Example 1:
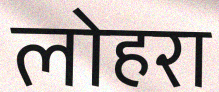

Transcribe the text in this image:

लोहरा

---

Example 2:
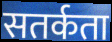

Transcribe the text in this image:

सतर्कता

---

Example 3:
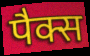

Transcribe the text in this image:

पैक्स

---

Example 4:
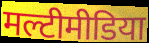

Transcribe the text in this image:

मल्टीमीडिया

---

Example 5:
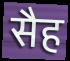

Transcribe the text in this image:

सैह